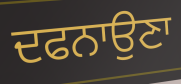
ਦਫਨਾਉਣਾ